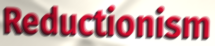
Reductionism